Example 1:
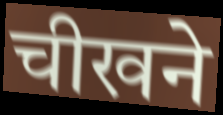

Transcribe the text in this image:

चीखने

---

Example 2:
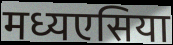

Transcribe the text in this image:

मध्यएसिया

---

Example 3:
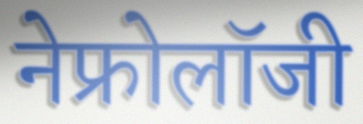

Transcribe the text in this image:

नेफ्रोलॉजी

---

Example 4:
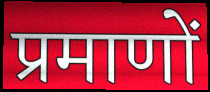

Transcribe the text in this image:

प्रमाणों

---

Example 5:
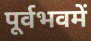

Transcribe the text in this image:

पूर्वभवमें